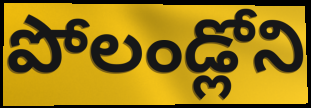
పోలండ్లోని